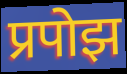
प्रपोझ